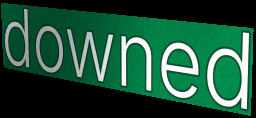
downed